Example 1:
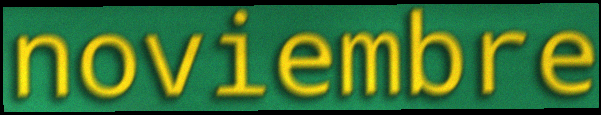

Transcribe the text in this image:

noviembre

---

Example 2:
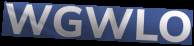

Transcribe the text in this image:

WGWLO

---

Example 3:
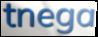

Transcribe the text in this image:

tnega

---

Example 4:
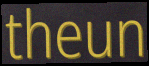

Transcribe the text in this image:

theun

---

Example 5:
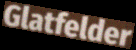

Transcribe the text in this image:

Glatfelder